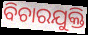
ବିଚାରଯୁକ୍ତି